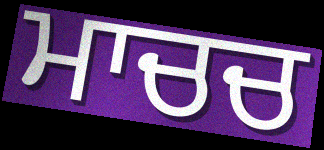
ਮਾਚਚ